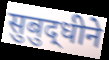
सुबुद्धीने